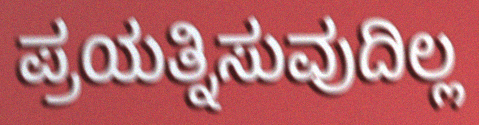
ಪ್ರಯತ್ನಿಸುವುದಿಲ್ಲ